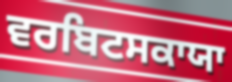
ਵਰਬਿਟਸਕਾਯਾ